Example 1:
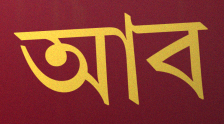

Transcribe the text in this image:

আব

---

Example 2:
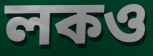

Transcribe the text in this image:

লকও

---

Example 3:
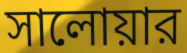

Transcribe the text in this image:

সালোয়ার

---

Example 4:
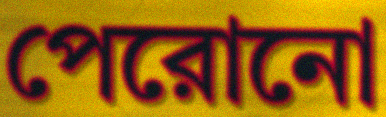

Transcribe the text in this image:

পেরোনো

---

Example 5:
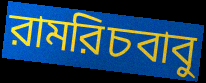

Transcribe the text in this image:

রামরিচবাবু